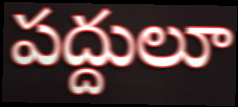
పద్దులూ